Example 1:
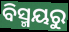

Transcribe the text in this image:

ବିସ୍ମୟରୁ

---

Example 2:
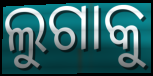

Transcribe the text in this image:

ଲୁଗାକୁ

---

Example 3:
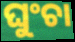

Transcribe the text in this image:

ଘୁଂଚା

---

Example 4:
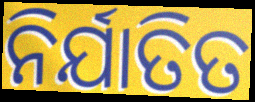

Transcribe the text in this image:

ନିର୍ଯାତିତ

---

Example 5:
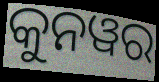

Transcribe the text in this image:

କୁନୱର